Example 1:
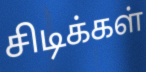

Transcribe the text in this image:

சிடிக்கள்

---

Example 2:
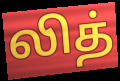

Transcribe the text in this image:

லித்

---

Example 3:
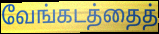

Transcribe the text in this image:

வேங்கடத்தைத்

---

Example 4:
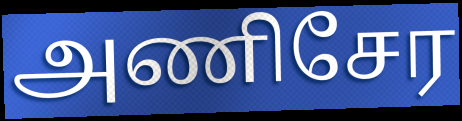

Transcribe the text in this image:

அணிசேர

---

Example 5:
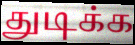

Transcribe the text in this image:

துடிக்க